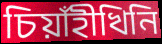
চিয়াঁহীখিনি